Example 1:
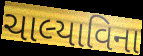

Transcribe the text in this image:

ચાલ્યાવિના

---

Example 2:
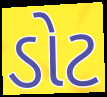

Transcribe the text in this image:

ડોટ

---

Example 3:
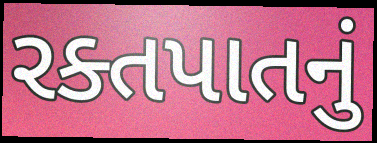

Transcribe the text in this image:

રક્તપાતનું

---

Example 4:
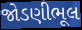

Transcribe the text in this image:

જોડણીભૂલ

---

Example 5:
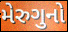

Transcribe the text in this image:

મેરુગુનો